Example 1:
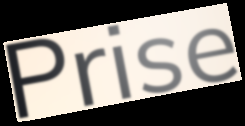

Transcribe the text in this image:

Prise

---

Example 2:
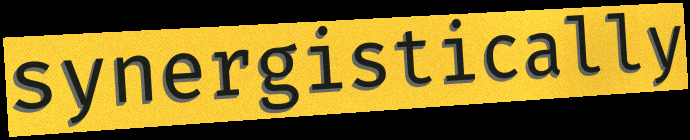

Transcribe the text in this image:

synergistically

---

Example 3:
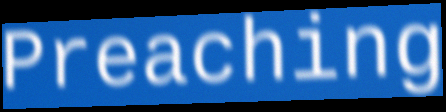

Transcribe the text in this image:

Preaching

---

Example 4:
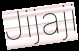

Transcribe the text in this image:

Jijaji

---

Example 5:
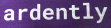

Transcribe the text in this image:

ardently